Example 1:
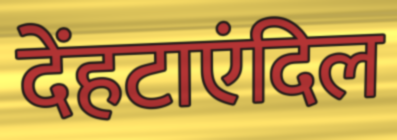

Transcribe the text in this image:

देंहटाएंदिल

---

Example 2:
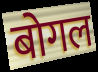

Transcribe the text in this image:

बोगल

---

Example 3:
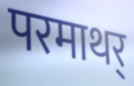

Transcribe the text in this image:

परमाथर्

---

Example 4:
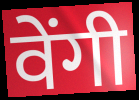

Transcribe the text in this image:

वेंगी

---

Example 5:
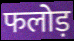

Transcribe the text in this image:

फलोड़